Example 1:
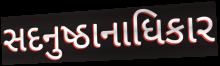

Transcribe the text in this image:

સદનુષ્ઠાનાધિકાર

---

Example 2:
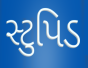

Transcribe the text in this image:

સ્ટુપિડ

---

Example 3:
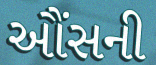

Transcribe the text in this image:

ઔંસની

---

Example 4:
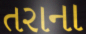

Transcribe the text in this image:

તરાના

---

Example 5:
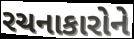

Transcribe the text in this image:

રચનાકારોને